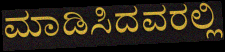
ಮಾಡಿಸಿದವರಲ್ಲಿ